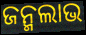
ଜନ୍ମଲାଭ